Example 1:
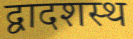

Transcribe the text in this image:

द्वादशस्थ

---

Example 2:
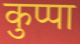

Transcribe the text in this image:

कुप्पा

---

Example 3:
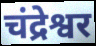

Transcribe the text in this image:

चंद्रेश्वर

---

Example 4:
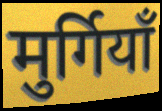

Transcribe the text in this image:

मुर्गियाँ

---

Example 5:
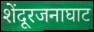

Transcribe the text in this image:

शेंदूरजनाघाट